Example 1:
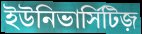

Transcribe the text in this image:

ইউনিভার্সিটিজ়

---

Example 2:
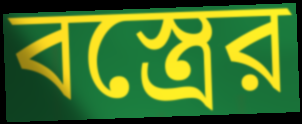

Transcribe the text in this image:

বস্ত্রের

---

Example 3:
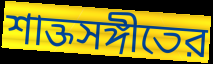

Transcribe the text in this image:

শাক্তসঙ্গীতের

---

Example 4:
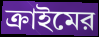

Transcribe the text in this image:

ক্রাইমের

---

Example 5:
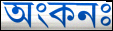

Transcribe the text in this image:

অংকনঃ